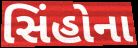
સિંહોના